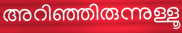
അറിഞ്ഞിരുന്നുള്ളൂ